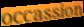
occassion